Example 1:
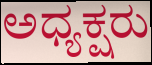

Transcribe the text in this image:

ಅಧ್ಯಕ್ಷರು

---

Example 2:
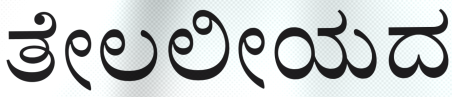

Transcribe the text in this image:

ತೇಲಲೀಯದ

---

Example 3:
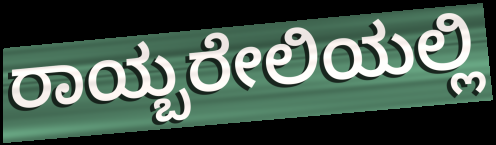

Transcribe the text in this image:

ರಾಯ್ಬರೇಲಿಯಲ್ಲಿ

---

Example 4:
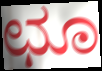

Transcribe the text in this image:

ಛೂ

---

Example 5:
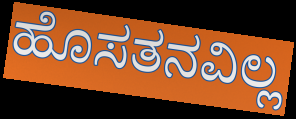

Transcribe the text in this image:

ಹೊಸತನವಿಲ್ಲ